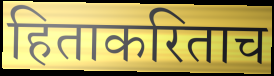
हिताकरिताच